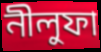
নীলুফা